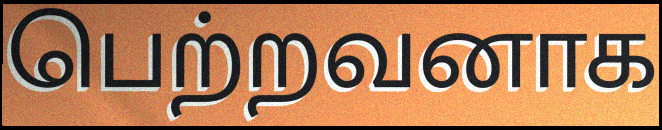
பெற்றவனாக